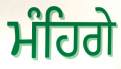
ਮੰਹਿਗੇ